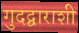
गुदद्वाराशी